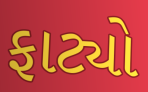
ફાટ્યો